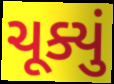
ચૂક્યું